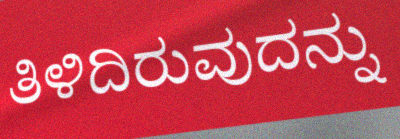
ತಿಳಿದಿರುವುದನ್ನು